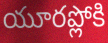
యూరప్లోకి